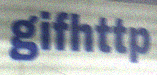
gifhttp